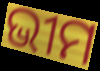
ଭୀମ